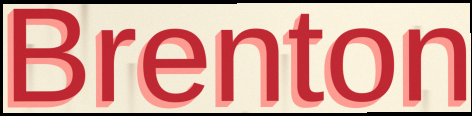
Brenton